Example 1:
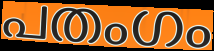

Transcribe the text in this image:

പതംഗം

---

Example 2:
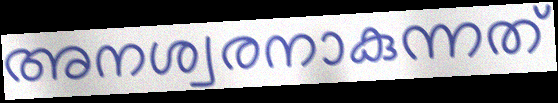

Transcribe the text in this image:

അനശ്വരനാകുന്നത്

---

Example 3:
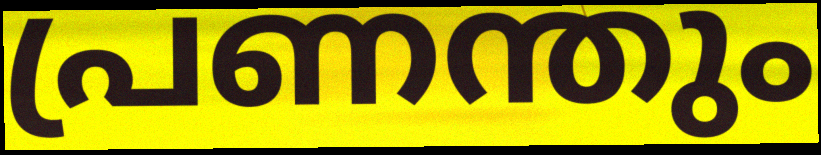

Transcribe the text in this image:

പ്രണന്തും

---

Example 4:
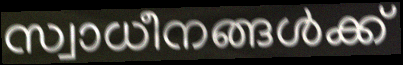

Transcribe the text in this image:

സ്വാധീനങ്ങൾക്ക്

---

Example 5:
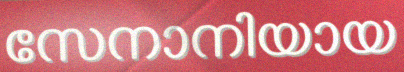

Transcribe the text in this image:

സേനാനിയായ